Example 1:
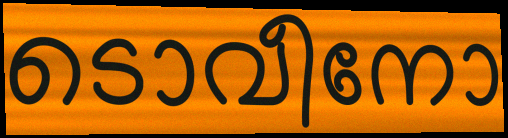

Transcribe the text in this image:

ടൊവീനോ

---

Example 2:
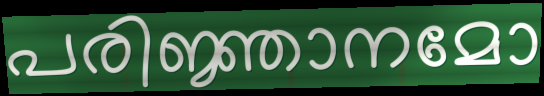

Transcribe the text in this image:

പരിജ്ഞാനമോ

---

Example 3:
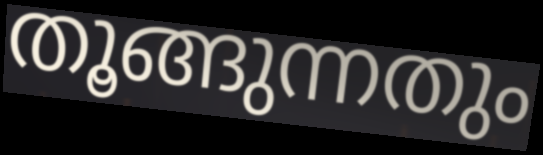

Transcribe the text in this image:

തൂങ്ങുന്നതും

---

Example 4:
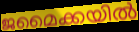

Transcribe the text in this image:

ജമൈക്കയിൽ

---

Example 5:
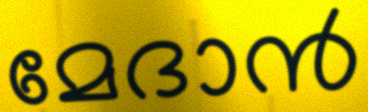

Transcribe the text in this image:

മേദാൻ